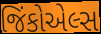
જિંકોએલ્સ